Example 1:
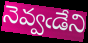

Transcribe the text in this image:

నెవ్వఁడేని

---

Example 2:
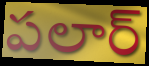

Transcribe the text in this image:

పలార్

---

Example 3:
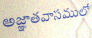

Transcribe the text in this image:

అజ్ఞాతవాసములో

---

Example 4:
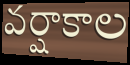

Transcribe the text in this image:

వర్షాకాల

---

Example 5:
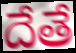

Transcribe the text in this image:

దేతే